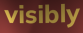
visibly